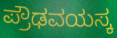
ಪ್ರೌಢವಯಸ್ಕ